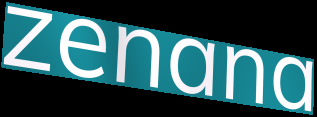
zenana